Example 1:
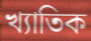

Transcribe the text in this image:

খ্যাতিক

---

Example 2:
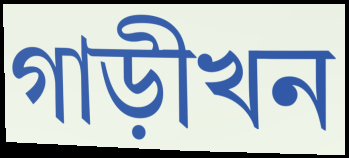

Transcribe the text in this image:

গাড়ীখন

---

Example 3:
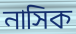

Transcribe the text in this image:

নাসিক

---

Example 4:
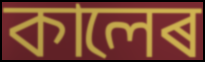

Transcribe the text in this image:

কালেৰ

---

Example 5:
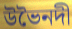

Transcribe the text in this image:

উভৈনদী